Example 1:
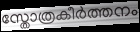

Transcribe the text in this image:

സ്തോത്രകീർത്തനം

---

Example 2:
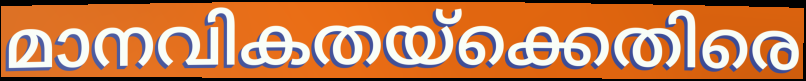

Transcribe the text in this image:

മാനവികതയ്ക്കെതിരെ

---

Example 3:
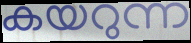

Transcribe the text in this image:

കയറുന്ന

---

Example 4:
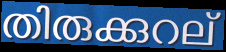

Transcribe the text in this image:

തിരുക്കുറല്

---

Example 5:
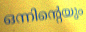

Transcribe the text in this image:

ഒന്നിന്റെയും